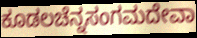
ಕೂಡಲಚೆನ್ನಸಂಗಮದೇವಾ